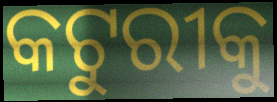
କଟୁରୀକୁ